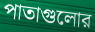
পাতাগুলোর